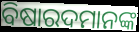
ବିଷାରଦମାନଙ୍କ